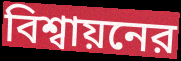
বিশ্বায়নের